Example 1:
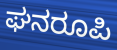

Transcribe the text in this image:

ಘನರೂಪಿ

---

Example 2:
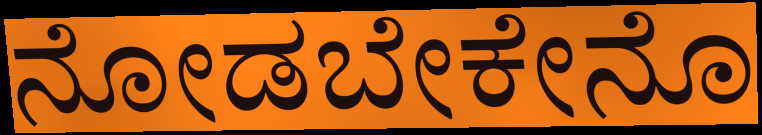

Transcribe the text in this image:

ನೋಡಬೇಕೇನೊ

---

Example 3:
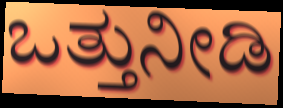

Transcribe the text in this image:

ಒತ್ತುನೀಡಿ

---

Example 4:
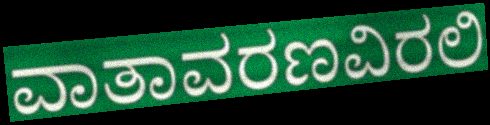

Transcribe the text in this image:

ವಾತಾವರಣವಿರಲಿ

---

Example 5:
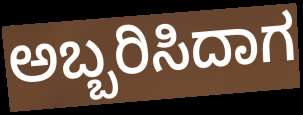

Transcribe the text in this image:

ಅಬ್ಬರಿಸಿದಾಗ